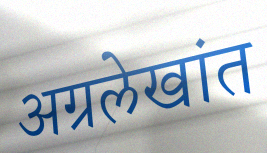
अग्रलेखांत